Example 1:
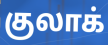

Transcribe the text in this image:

குலாக்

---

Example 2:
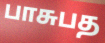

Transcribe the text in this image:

பாசுபத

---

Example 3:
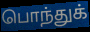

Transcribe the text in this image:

பொந்துக்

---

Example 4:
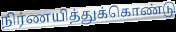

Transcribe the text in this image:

நிர்ணயித்துக்கொண்டு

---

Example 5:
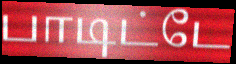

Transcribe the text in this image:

பாடிட்டே